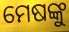
ମେଷଙ୍କୁ